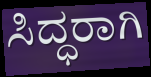
ಸಿದ್ಧರಾಗಿ